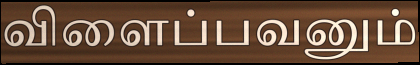
விளைப்பவனும்